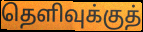
தெளிவுக்குத்